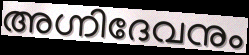
അഗ്നിദേവനും